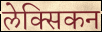
लेक्सिकन